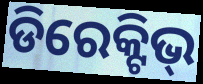
ଡିରେକ୍ଟିଭ୍